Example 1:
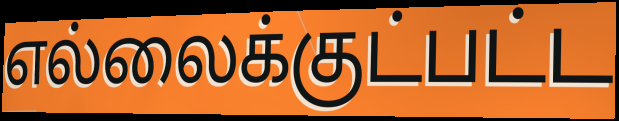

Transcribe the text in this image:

எல்லைக்குட்பட்ட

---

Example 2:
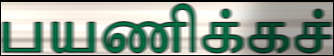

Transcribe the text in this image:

பயணிக்கச்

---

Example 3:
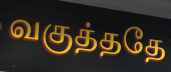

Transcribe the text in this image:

வகுத்ததே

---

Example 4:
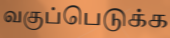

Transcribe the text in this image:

வகுப்பெடுக்க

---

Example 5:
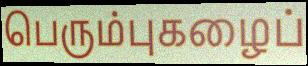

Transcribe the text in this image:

பெரும்புகழைப்